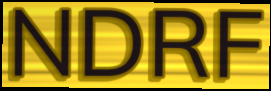
NDRF